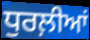
ਧੁਰਲ਼ੀਆਂ